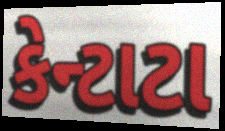
કેન્ટાટા